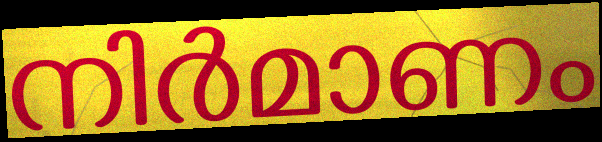
നിർമാണം